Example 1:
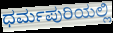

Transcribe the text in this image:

ಧರ್ಮಪುರಿಯಲ್ಲಿ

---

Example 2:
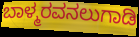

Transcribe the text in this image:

ಬಾಳ್ಮರವನಲುಗಾಡಿ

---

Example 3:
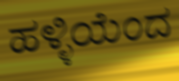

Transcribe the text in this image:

ಹಳ್ಳಿಯೆಂದ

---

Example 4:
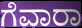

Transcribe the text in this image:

ಗೆವಾರಾ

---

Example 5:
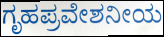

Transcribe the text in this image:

ಗೃಹಪ್ರವೇಶನೀಯ